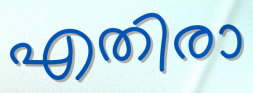
എതിരാ